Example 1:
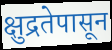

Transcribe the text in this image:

क्षुद्रतेपासून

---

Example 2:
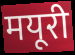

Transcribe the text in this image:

मयूरी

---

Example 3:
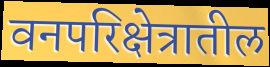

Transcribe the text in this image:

वनपरिक्षेत्रातील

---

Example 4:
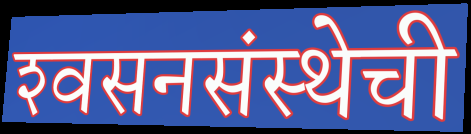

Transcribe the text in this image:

श्वसनसंस्थेची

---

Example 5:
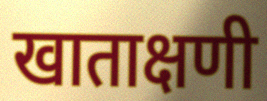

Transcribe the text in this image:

खाताक्षणी